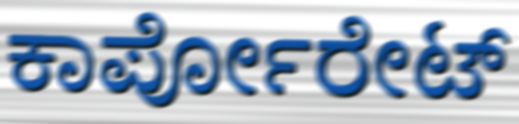
ಕಾರ್ಪೋರೇಟ್